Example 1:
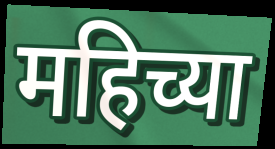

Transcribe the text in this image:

महिच्या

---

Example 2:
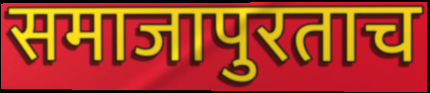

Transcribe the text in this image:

समाजापुरताच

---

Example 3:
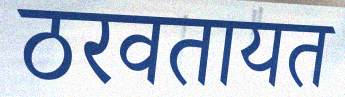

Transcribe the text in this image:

ठरवतायत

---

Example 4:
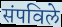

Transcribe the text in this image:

संपविले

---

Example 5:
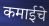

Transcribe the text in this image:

कमाईचे